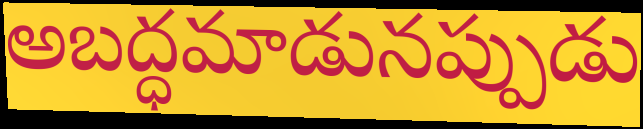
అబద్ధమాడునప్పుడు